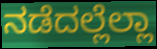
ನಡೆದಲ್ಲೆಲ್ಲಾ